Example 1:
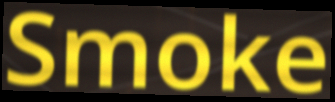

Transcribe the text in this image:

Smoke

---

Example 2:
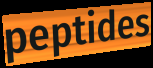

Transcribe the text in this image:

peptides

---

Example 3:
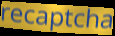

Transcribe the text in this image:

recaptcha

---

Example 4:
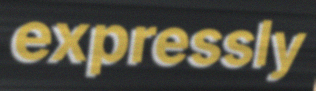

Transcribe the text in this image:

expressly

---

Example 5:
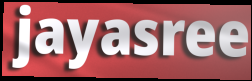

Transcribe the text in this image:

jayasree